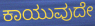
ಕಾಯುವುದೇ